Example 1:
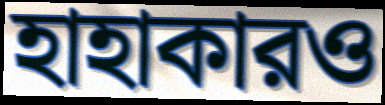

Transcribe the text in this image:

হাহাকারও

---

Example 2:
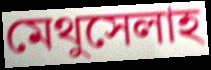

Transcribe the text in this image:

মেথুসেলাহ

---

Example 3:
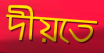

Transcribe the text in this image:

দীয়তে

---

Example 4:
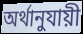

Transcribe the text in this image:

অর্থানুযায়ী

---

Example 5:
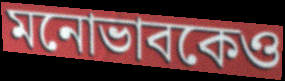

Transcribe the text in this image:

মনোভাবকেও